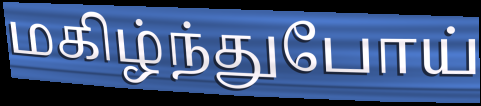
மகிழ்ந்துபோய்